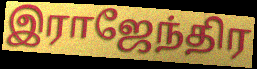
இராஜேந்திர